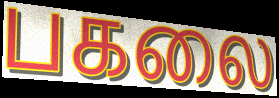
பகலை